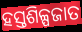
ହସ୍ତଶିଳ୍ପଜାତ